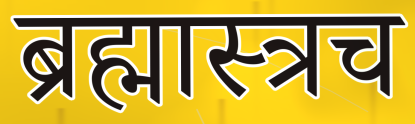
ब्रह्मास्त्रच